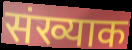
संख्याक